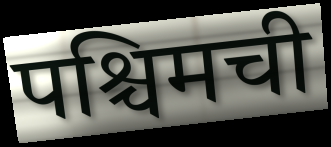
पश्चिमची